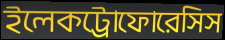
ইলেকট্রোফোরেসিস